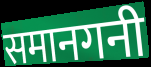
समानगनी